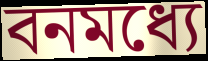
বনমধ্যে